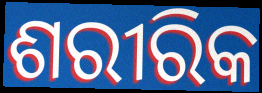
ଶରୀରିକ